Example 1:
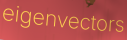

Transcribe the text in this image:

eigenvectors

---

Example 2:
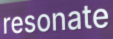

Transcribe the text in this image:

resonate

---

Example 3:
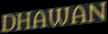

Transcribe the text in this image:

DHAWAN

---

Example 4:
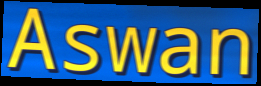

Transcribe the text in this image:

Aswan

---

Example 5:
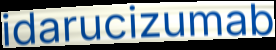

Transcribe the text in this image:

idarucizumab